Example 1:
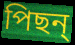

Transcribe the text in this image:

পিছন্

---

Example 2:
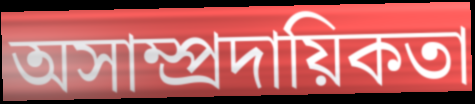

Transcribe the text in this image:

অসাম্প্রদায়িকতা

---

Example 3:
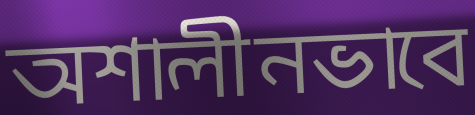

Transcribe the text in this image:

অশালীনভাবে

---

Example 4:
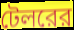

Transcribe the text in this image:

টেলরের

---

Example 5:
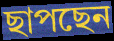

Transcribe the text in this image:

ছাপছেন